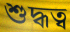
শুদ্ধত্ব